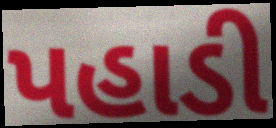
પહાડી